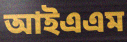
আইএএম